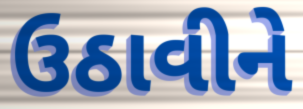
ઉઠાવીને